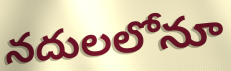
నదులలోనూ